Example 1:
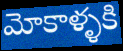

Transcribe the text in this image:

మోకాళ్ళకి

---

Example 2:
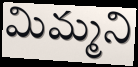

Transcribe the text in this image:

మిమ్మని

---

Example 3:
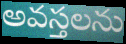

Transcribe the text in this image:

అవస్తలను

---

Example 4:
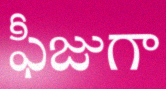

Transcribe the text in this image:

ఫీజుగా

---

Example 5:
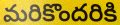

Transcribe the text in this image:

మరికొందరికి